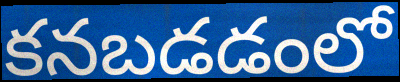
కనబడడంలో